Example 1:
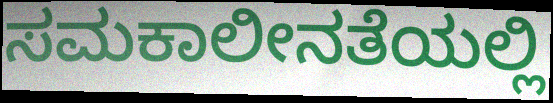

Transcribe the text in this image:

ಸಮಕಾಲೀನತೆಯಲ್ಲಿ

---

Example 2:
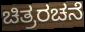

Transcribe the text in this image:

ಚಿತ್ರರಚನೆ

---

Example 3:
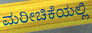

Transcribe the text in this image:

ಮರೀಚಿಕೆಯಲ್ಲಿ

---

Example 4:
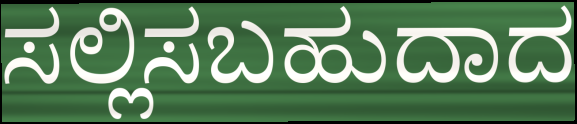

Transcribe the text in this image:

ಸಲ್ಲಿಸಬಹುದಾದ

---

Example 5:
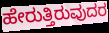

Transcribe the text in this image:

ಹೇರುತ್ತಿರುವುದರ